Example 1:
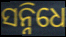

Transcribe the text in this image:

ସନ୍ନିଧେ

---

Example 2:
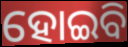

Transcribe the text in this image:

ହୋଇବି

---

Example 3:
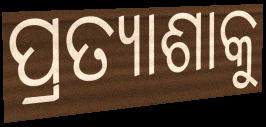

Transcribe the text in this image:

ପ୍ରତ୍ୟାଶାକୁ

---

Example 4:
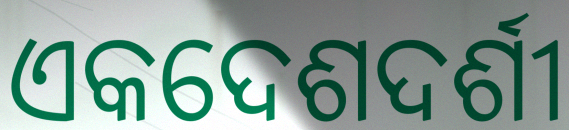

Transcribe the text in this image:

ଏକଦେଶଦର୍ଶୀ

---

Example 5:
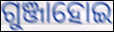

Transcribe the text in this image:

ଗୁଞ୍ଜାହୋଇ